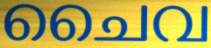
ചൈവ